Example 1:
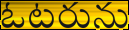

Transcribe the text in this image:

ఓటరును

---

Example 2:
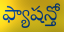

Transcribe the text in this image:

ఫ్యాషన్తో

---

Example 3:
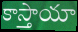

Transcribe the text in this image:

కాస్తాయా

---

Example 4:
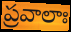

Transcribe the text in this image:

ప్రవాలాః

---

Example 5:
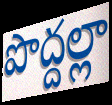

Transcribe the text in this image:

పొద్దల్లా